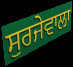
ਸੁਰਜੇਵਾਲਾ